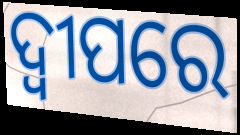
ଦ୍ୱୀପରେ